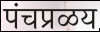
पंचप्रळय